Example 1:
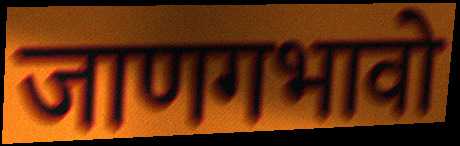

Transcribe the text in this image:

जाणगभावो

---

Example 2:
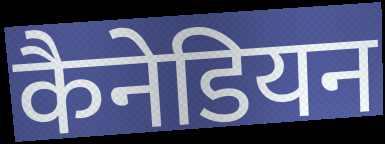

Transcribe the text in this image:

कैनेडियन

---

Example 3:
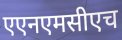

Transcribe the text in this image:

एएनएमसीएच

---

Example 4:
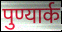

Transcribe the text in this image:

पुण्यार्क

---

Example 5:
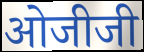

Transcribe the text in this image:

ओजीजी